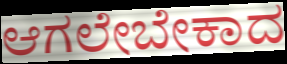
ಆಗಲೇಬೇಕಾದ